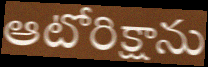
ఆటోరిక్షాను